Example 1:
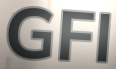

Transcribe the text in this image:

GFI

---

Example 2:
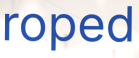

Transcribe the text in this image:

roped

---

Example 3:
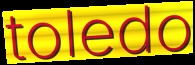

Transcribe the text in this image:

toledo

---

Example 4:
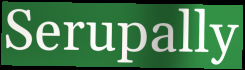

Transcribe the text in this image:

Serupally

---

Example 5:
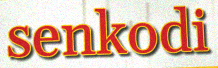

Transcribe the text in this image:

senkodi